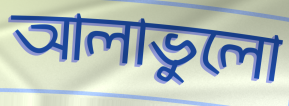
আলাভুলো